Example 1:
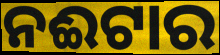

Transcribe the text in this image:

ନଈଟାର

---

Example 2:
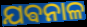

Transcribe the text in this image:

ଯଵନାଳ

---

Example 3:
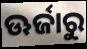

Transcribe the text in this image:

ଊର୍ଜାରୁ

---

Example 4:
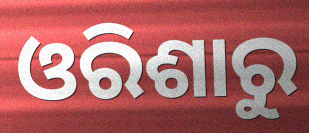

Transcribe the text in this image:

ଓରିଶାରୁ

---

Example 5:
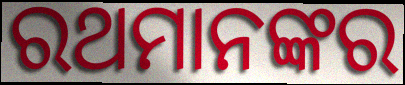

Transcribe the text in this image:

ରଥମାନଙ୍କର